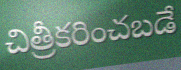
చిత్రీకరించబడే